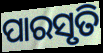
ପାରସୃତି